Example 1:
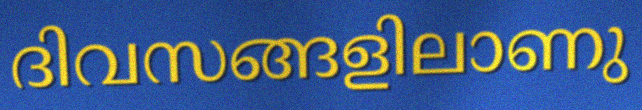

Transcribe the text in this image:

ദിവസങ്ങളിലാണു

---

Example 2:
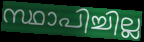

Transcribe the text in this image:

സ്ഥാപിച്ചില്ല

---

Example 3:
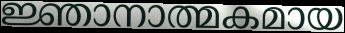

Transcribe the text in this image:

ജ്ഞാനാത്മകമായ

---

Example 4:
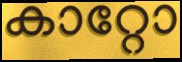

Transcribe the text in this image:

കാറ്റോ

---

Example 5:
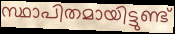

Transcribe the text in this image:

സ്ഥാപിതമായിട്ടുണ്ട്